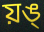
য়ঙ্